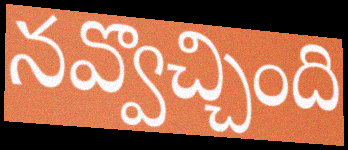
నవ్వొచ్చింది